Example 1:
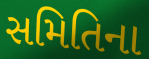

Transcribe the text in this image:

સમિતિના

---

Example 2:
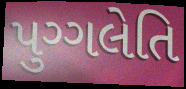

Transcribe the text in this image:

પુગ્ગલેતિ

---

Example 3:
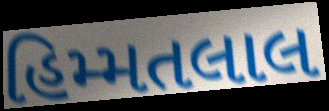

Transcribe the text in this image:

હિમ્મતલાલ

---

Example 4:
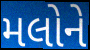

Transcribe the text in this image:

મલોને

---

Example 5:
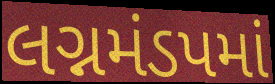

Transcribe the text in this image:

લગ્નમંડપમાં